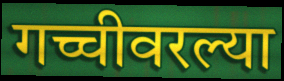
गच्चीवरल्या